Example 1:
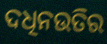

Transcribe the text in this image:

ଦଧିନଉତିର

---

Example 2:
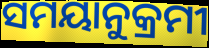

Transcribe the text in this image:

ସମୟାନୁକ୍ରମୀ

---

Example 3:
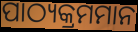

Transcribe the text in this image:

ପାଠ୍ୟକ୍ରମମାନ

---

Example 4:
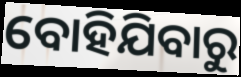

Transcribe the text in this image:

ବୋହିଯିବାରୁ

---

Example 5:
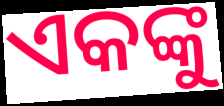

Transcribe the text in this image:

ଏକଙ୍କୁ